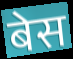
बेस